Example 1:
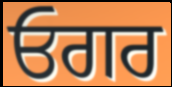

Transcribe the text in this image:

ਓਗਰ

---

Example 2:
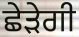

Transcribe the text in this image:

ਛੇੜੇਗੀ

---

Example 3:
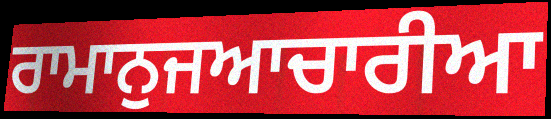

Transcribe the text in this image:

ਰਾਮਾਨੁਜਆਚਾਰੀਆ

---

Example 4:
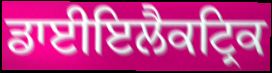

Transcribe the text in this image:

ਡਾਈਇਲੈਕਟ੍ਰਿਕ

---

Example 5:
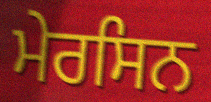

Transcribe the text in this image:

ਮੇਰਸਿਨ